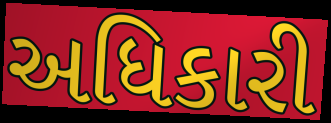
અધિકારી